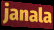
janala